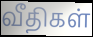
வீதிகள்